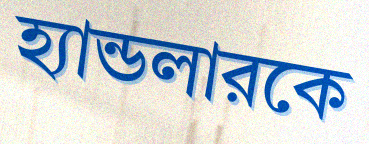
হ্যান্ডলারকে